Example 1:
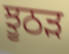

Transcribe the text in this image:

ਝੂਠੜ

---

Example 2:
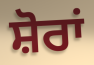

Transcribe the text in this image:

ਸ਼ੋਰਾਂ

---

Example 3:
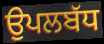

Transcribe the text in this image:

ਉਪਲਬੱਧ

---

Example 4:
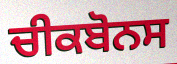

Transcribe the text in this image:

ਚੀਕਬੋਨਸ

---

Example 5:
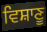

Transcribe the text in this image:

ਵਿਸ਼ਾਣੂ